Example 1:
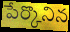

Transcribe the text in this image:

పేర్కొనిన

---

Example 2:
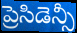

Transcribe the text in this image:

ప్రెసిడెన్సీ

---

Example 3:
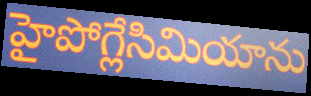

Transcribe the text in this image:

హైపోగ్లేసిమియాను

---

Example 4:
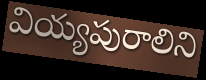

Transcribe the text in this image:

వియ్యపురాలిని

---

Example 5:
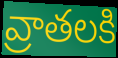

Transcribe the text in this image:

వ్రాతలకి